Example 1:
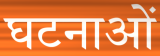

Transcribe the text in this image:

घटनाओं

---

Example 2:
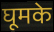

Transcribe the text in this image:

घूमके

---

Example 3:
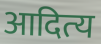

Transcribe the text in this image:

आदित्‍य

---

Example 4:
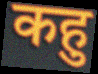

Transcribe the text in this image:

कहु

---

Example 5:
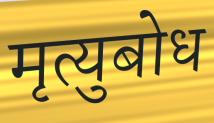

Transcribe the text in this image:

मृत्युबोध